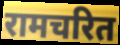
रामचरित